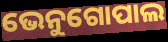
ଭେନୁଗୋପାଲ